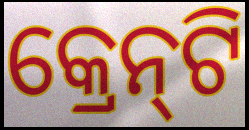
କ୍ରେନ୍‍ଟି